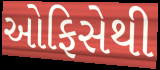
ઓફિસેથી